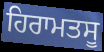
ਹਿਰਾਮਤਸੂ